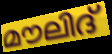
മൗലിദ്